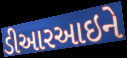
ડીઆરઆઇને